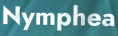
Nymphea